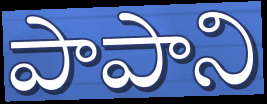
పాపాని